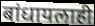
बांधायलाही